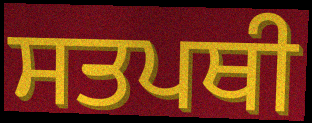
ਸਤਪਥੀ